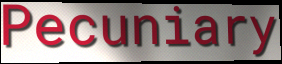
Pecuniary